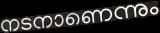
നടനാണെന്നും